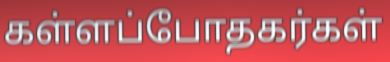
கள்ளப்போதகர்கள்